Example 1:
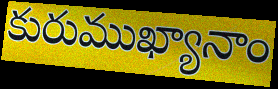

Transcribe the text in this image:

కురుముఖ్యానాం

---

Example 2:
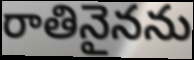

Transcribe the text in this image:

రాతినైనను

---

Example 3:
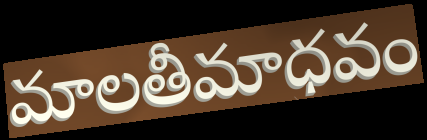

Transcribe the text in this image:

మాలతీమాధవం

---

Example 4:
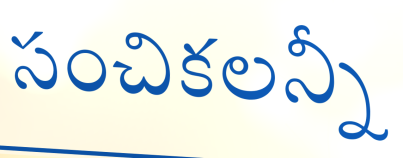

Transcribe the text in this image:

సంచికలన్నీ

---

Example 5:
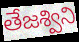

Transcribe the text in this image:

తేజశ్విని